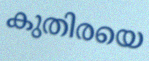
കുതിരയെ